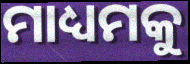
ମାଧ୍ୟମକୁ